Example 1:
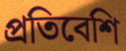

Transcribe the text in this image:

প্রতিবেশি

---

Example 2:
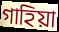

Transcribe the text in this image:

গাহিয়া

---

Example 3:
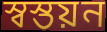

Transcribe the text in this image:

স্বস্তয়ন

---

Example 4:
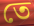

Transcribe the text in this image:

তে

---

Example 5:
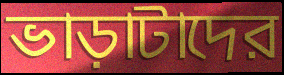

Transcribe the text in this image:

ভাড়াটাদের